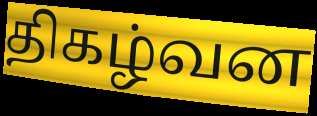
திகழ்வன